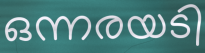
ഒന്നരയടി